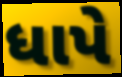
ધાપે